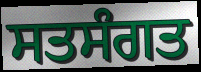
ਸਤਸੰਗਤ